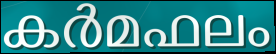
കർമഫലം